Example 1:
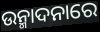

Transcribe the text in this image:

ଉନ୍ମାଦନାରେ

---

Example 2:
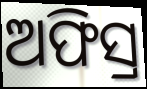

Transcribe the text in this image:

ଅଫିସ୍ର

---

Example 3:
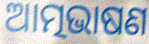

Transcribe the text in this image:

ଆତ୍ମଭାଷଣ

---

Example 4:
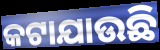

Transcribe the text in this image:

କଟାଯାଉଛି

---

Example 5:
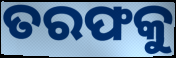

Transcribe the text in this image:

ତରଫକୁ